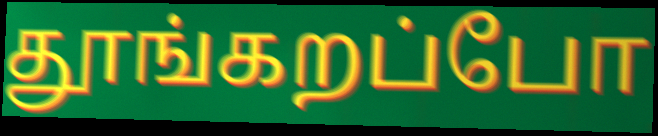
தூங்கறப்போ